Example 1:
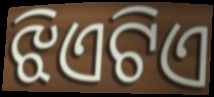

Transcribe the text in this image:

ଝିଏଟିଏ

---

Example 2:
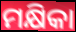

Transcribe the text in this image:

ମକ୍ଷିକା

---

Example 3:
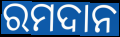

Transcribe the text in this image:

ରମଦାନ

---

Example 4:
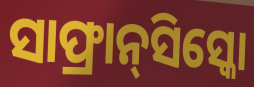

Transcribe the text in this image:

ସାଫ୍ରାନ୍‌ସିସ୍କୋ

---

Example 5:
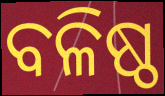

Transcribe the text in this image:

ବଳିଷ୍ଠ